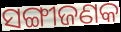
ସଙ୍ଗୀଜଣକ